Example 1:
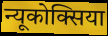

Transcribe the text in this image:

न्यूकोक्सिया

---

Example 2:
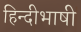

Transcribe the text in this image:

हिन्दीभाषी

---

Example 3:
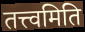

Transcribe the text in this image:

तत्त्वमिति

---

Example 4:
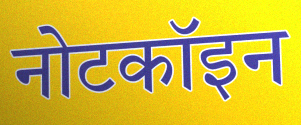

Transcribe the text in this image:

नोटकॉइन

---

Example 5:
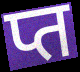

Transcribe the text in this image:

प्त